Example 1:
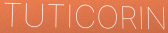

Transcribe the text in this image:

TUTICORIN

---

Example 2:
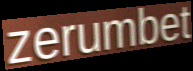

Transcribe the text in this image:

zerumbet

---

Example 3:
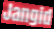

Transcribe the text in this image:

Jangid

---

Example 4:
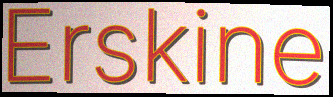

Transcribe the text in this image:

Erskine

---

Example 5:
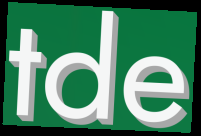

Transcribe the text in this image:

tde